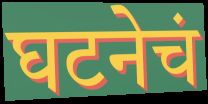
घटनेचं